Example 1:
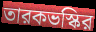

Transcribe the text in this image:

তারকভস্কির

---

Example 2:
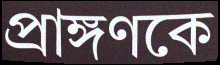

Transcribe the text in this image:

প্রাঙ্গণকে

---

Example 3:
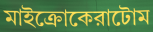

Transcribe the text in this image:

মাইক্রোকেরাটোম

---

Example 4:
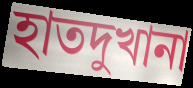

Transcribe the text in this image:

হাতদুখানা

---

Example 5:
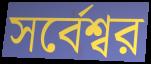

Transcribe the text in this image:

সর্বেশ্বর